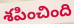
శపించింది